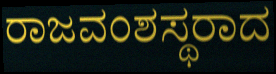
ರಾಜವಂಶಸ್ಥರಾದ